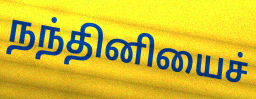
நந்தினியைச்